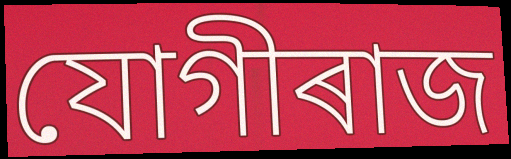
যোগীৰাজ